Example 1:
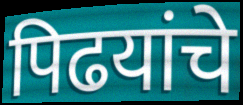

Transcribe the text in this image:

पिढयांचे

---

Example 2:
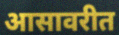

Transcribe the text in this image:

आसावरीत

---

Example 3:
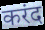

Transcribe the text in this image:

करंद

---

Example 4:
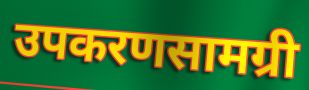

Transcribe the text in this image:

उपकरणसामग्री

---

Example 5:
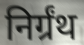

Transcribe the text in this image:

निर्ग्रंथ